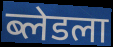
ब्लेडला